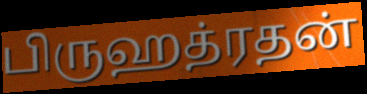
பிருஹத்ரதன்